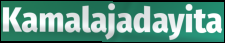
Kamalajadayita